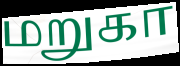
மறுகா